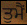
ਤੁਮੈਂ